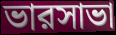
ভারসাভা